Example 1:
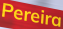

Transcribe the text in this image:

Pereira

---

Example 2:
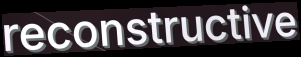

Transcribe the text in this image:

reconstructive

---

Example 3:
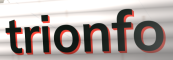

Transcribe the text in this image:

trionfo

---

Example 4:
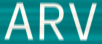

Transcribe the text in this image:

ARV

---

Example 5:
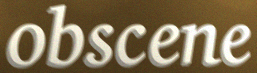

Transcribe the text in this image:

obscene